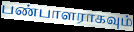
பண்பாளராகவும்